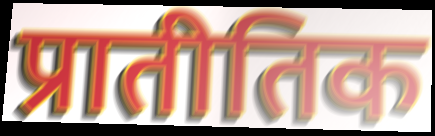
प्रातीतिक